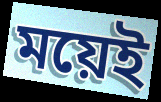
ময়েই